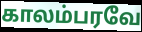
காலம்பரவே